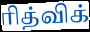
ரித்விக்